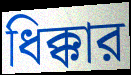
ধিক্কার